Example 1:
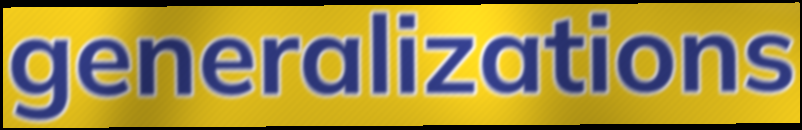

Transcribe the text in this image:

generalizations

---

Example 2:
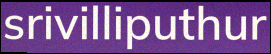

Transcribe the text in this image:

srivilliputhur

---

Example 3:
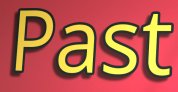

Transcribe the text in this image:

Past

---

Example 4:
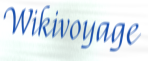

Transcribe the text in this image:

Wikivoyage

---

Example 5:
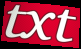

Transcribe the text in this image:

txt